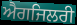
ਐਗਜਿਲਰੀ